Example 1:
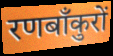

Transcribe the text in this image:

रणबाँकुरों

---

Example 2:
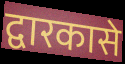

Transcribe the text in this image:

द्वारकासे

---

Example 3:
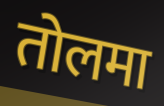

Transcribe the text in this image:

तोलमा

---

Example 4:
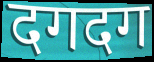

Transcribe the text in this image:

दगदग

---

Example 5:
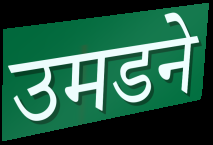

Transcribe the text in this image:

उमडने